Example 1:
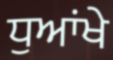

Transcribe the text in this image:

ਧੁਆਂਖੇ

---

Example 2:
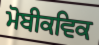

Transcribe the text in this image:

ਮੋਬੀਕਵਿਕ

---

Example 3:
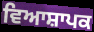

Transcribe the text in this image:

ਵਿਆਸ਼ਾਪਕ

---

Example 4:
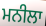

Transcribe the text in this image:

ਮਨੀਲਾ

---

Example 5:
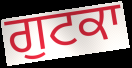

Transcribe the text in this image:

ਗੁਟਕਾ